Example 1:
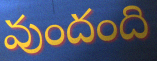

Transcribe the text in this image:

వుందంది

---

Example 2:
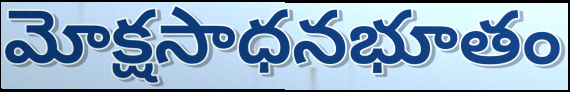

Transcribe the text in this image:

మోక్షసాధనభూతం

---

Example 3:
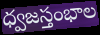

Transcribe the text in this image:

ధ్వజస్తంభాల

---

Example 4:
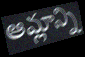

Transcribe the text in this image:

ఆమ్లాన్ని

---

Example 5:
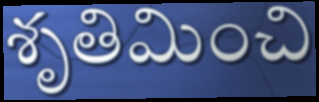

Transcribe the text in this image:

శృతిమించి